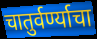
चातुर्वर्ण्याचा